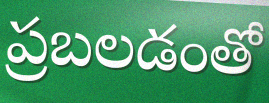
ప్రబలడంతో